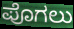
ಪೊಗಲು